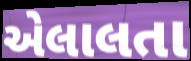
એલાલતા